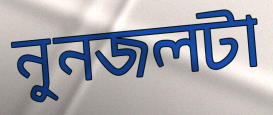
নুনজলটা